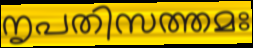
നൃപതിസത്തമഃ